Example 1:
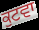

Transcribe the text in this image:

ਕੁਟਵਾ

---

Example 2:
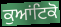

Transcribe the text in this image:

ਕੁਆਂਟਿਕੋ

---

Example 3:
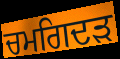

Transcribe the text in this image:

ਚਮਗਿਦੜ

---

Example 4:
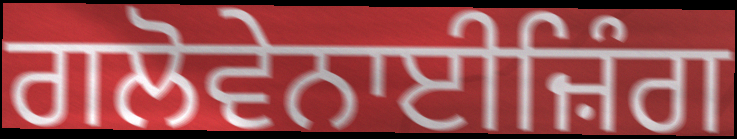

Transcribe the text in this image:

ਗਲੋਵੇਨਾਈਜ਼ਿੰਗ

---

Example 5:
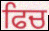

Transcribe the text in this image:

ਫਿਚ